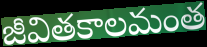
జీవితకాలమంత